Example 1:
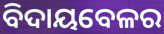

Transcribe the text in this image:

ବିଦାୟବେଳର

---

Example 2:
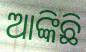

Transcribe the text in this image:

ଆଙ୍କିଛି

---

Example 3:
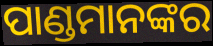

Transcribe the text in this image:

ପାଣ୍ଡମାନଙ୍କର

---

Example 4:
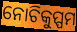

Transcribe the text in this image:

ନୋଚିକୁପ୍ପମ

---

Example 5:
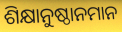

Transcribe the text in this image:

ଶିକ୍ଷାନୁଷ୍ଠାନମାନ